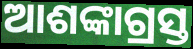
ଆଶଙ୍କାଗ୍ରସ୍ତ